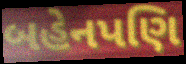
બહેનપણિ